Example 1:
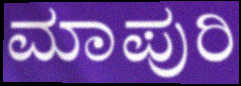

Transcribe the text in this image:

ಮಾಪುರಿ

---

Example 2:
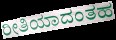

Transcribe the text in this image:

ರೀತಿಯಾದಂತಹ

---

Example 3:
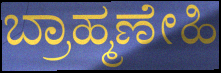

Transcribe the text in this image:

ಬ್ರಾಹ್ಮಣೇಹಿ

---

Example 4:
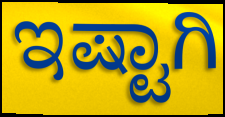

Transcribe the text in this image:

ಇಷ್ಟಾಗಿ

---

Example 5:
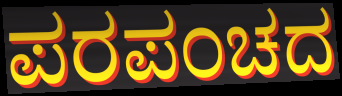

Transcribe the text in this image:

ಪರಪಂಚದ